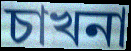
চাখনা